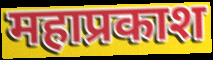
महाप्रकाश